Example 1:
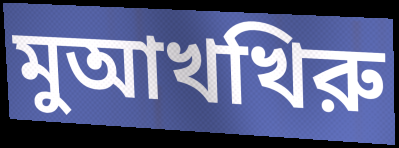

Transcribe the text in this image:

মুআখখিরু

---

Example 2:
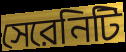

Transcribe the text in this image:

সেরেনিটি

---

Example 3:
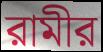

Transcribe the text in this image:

রামীর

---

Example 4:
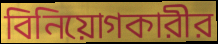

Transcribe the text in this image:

বিনিয়োগকারীর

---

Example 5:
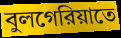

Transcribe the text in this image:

বুলগেরিয়াতে